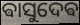
ଵାସୁଦେଵ